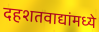
दहशतवाद्यांमध्ये